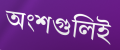
অংশগুলিই